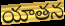
యాతన